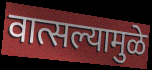
वात्सल्यामुळे